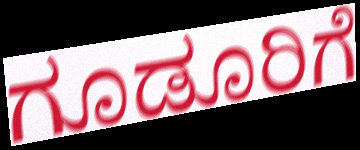
ಗೂಡೂರಿಗೆ